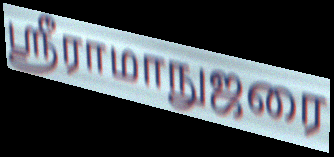
ஸ்ரீராமாநுஜரை